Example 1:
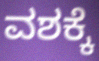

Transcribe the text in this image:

ವಶಕ್ಕೆ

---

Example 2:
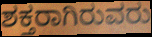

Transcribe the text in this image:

ಶಕ್ತರಾಗಿರುವರು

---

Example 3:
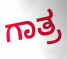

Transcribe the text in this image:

ಗಾತ್ರ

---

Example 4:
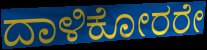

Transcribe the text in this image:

ದಾಳಿಕೋರರೇ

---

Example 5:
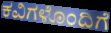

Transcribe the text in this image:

ಕವಿಗಳೊಂದಿಗೆ